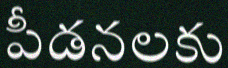
పీడనలకు